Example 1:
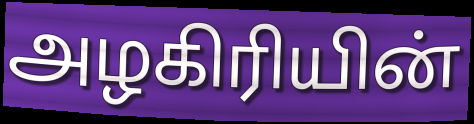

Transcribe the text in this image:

அழகிரியின்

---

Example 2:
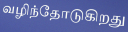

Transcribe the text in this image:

வழிந்தோடுகிறது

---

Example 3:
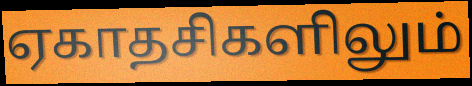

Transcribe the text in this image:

ஏகாதசிகளிலும்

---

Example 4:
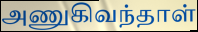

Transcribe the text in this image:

அணுகிவந்தாள்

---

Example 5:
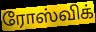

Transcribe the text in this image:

ரோஸ்விக்